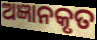
ଅଜ୍ଞାନକୃତ